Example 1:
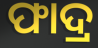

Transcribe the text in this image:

ଫାଦ୍ର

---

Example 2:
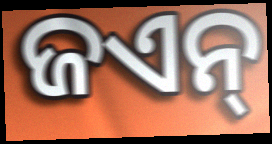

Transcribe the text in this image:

ଜଏନ୍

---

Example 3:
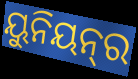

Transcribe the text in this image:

ୟୁନିୟନ୍‌ର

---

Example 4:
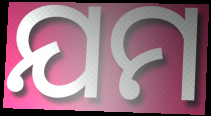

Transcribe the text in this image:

ଯମ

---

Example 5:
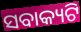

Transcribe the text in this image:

ସବାକ୍ୟଟି